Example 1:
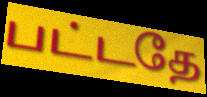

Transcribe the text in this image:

பட்டதே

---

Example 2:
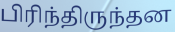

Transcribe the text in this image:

பிரிந்திருந்தன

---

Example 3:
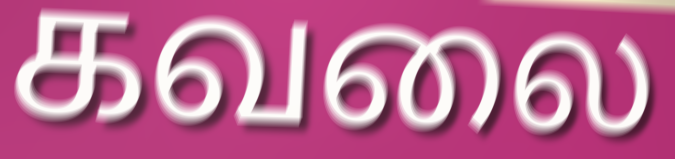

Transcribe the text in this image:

கவலை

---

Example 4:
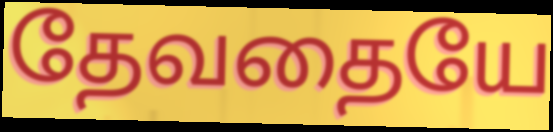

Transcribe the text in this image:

தேவதையே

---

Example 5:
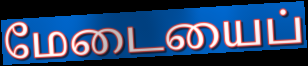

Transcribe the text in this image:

மேடையைப்